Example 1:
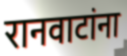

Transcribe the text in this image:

रानवाटांना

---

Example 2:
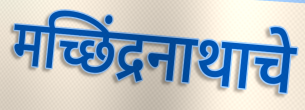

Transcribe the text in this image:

मच्छिंद्रनाथाचे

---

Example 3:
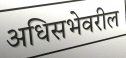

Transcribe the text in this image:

अधिसभेवरील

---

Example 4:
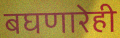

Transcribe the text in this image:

बघणारेही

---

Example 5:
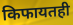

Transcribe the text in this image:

किफायतही